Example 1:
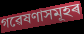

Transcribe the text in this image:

গৱেষণাসমূহৰ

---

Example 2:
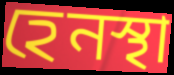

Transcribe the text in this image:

হেনস্থা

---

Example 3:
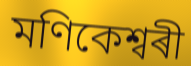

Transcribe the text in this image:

মণিকেশ্বৰী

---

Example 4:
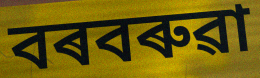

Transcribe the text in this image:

বৰবৰুৱা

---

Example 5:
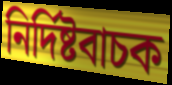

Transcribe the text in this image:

নিৰ্দিষ্টবাচক